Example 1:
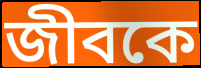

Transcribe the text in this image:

জীবকে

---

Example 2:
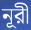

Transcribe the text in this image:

নূরী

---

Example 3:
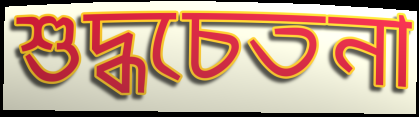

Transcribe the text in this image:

শুদ্ধচেতনা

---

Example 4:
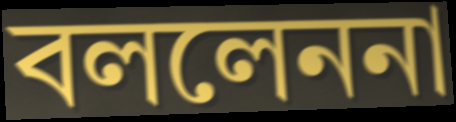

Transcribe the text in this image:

বললেননা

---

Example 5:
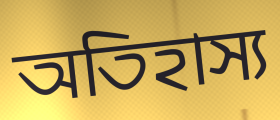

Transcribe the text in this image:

অতিহাস্য